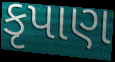
કૃપાણ